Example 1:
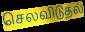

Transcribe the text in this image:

செலவிடுதல்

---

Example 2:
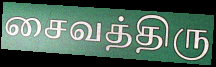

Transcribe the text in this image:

சைவத்திரு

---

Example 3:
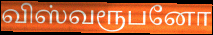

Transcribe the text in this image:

விஸ்வரூபனோ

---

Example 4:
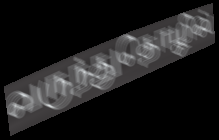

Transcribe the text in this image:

வருந்துதொழில்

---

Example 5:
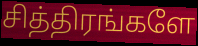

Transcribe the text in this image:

சித்திரங்களே